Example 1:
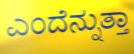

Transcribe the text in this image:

ಎಂದೆನ್ನುತ್ತಾ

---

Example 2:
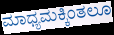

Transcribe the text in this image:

ಮಾಧ್ಯಮಕ್ಕಿಂತಲೂ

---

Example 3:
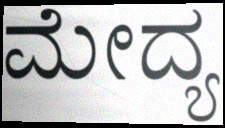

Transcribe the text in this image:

ಮೇದ್ಯ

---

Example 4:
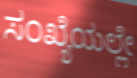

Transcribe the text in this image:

ಸಂಖ್ಯೆಯಲ್ಲೇ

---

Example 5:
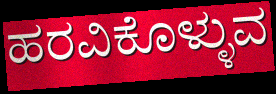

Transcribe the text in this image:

ಹರವಿಕೊಳ್ಳುವ